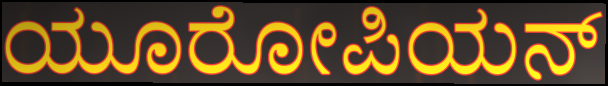
ಯೂರೋಪಿಯನ್